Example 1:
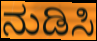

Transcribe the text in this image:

ನುಡಿಸಿ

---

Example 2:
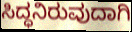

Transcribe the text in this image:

ಸಿದ್ಧನಿರುವುದಾಗಿ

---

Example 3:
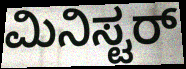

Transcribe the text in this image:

ಮಿನಿಸ್ಟರ್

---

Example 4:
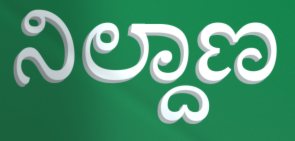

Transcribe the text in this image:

ನಿಲ್ದಾಣ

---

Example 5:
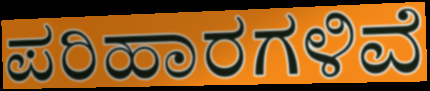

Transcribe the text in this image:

ಪರಿಹಾರಗಳಿವೆ